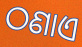
ଠଣାଏ